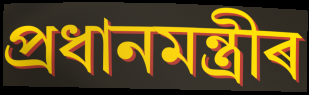
প্ৰধানমন্ত্ৰীৰ